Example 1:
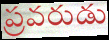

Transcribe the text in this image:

ప్రవరుడు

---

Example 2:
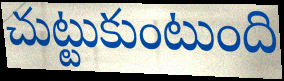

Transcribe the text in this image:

చుట్టుకుంటుంది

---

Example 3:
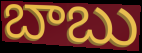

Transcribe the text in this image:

బాబు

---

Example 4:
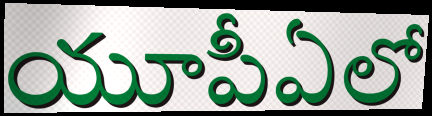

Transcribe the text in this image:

యూపీఏలో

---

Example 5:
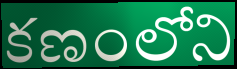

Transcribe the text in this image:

కణంలోని